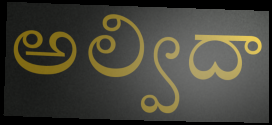
అల్విదా